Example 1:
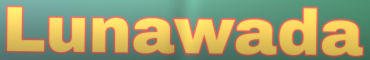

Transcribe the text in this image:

Lunawada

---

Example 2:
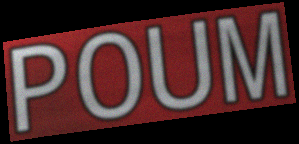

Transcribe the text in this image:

POUM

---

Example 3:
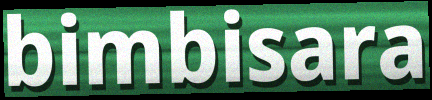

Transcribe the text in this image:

bimbisara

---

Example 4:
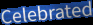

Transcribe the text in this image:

Celebrated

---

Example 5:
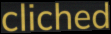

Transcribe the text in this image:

cliched